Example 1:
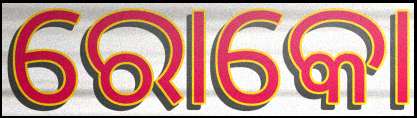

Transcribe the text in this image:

ରୋକୋ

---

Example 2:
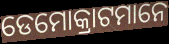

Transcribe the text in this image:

ଡେମୋକ୍ରାଟମାନେ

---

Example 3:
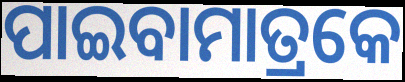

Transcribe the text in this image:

ପାଇବାମାତ୍ରକେ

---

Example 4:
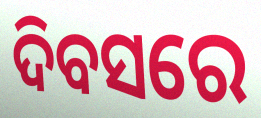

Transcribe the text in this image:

ଦିବସରେ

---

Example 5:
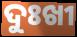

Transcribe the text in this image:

ଦୁଃଖୀ